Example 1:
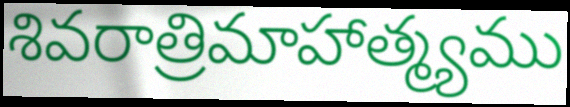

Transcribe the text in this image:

శివరాత్రిమాహాత్మ్యము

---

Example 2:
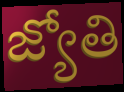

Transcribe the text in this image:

జ్యోతి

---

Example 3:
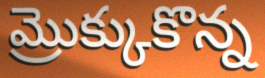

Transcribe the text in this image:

మ్రొక్కుకొన్న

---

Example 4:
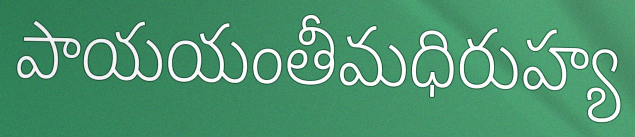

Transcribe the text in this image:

పాయయంతీమధిరుహ్య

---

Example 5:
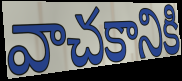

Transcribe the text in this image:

వాచకానికి